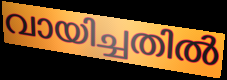
വായിച്ചതിൽ